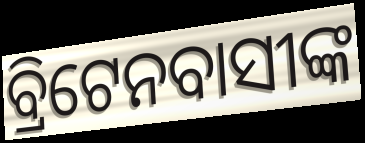
ବ୍ରିଟେନବାସୀଙ୍କ